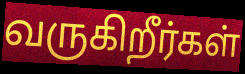
வருகிறீர்கள்